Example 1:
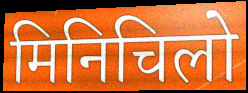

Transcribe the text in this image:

मिनिचिलो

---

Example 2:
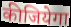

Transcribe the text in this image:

कीजियेगा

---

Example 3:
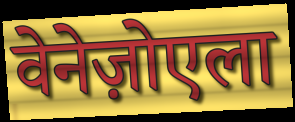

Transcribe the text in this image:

वेनेज़ोएला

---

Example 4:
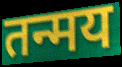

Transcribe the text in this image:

तन्मय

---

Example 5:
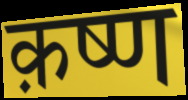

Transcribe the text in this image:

क़ष्ण